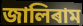
জালিৰাম